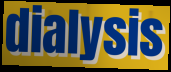
dialysis